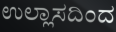
ಉಲ್ಲಾಸದಿಂದ